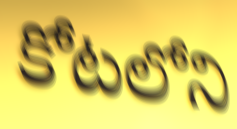
కోటలోని